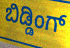
ಬಿಡ್ಡಿಂಗ್